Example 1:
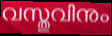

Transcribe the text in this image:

വസ്തുവിനും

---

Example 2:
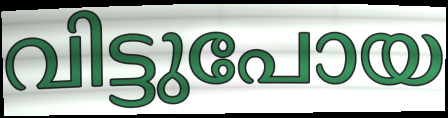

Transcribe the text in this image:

വിട്ടുപോയ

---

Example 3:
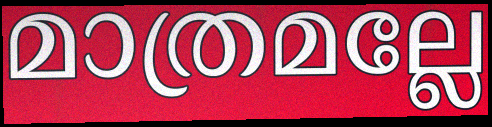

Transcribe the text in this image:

മാത്രമല്ലേ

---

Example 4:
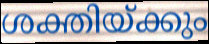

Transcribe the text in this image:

ശക്തിയ്ക്കും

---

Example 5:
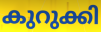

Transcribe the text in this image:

കുറുക്കി